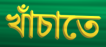
খাঁচাতে